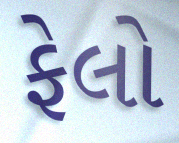
ફેલો